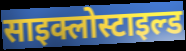
साइक्लोस्टाइल्ड